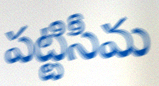
పట్టిసీమ